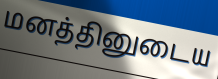
மனத்தினுடைய